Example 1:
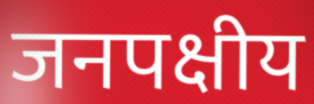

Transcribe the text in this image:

जनपक्षीय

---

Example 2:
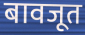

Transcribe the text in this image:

बावजूत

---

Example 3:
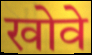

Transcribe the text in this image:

खोवे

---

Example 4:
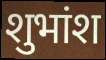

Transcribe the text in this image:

शुभांश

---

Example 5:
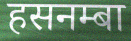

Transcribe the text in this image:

हसनम्बा